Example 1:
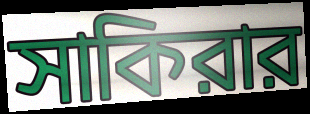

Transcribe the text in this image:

সাকিরার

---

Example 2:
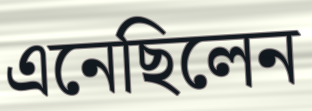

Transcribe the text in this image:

এনেছিলেন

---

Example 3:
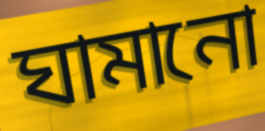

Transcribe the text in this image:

ঘামানো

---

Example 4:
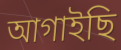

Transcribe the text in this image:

আগাইছি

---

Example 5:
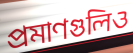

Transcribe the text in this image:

প্রমাণগুলিও